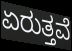
ಏರುತ್ತವೆ